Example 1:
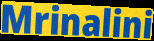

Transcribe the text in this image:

Mrinalini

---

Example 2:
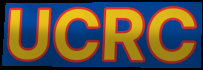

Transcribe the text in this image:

UCRC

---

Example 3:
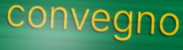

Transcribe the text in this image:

convegno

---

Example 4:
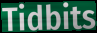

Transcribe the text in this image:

Tidbits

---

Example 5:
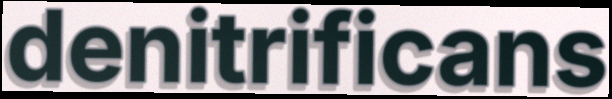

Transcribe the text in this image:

denitrificans